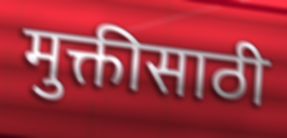
मुक्तीसाठी